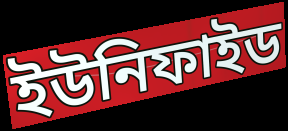
ইউনিফাইড